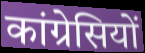
कांग्रेसियों